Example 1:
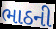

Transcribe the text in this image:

ભાઠની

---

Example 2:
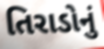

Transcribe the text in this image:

તિરાડોનું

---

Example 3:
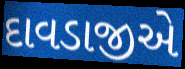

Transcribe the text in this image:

દાવડાજીએ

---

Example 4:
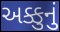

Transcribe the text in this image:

અક્કુનું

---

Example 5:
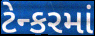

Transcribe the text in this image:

ટેન્કરમાં